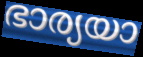
ഭാര്യയാ